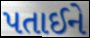
પતાઈને